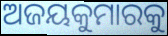
ଅଜୟକୁମାରକୁ